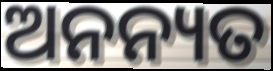
ଅନନ୍ୟତ